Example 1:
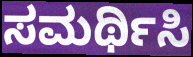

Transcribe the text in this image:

ಸಮರ್ಥಿಸಿ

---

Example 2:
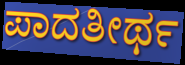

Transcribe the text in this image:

ಪಾದತೀರ್ಥ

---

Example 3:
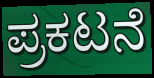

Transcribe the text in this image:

ಪ್ರಕಟನೆ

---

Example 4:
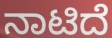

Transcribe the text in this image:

ನಾಟಿದೆ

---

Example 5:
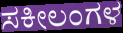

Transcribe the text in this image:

ಸಕೀಲಂಗಳ